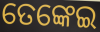
ତେଙ୍କେଇ